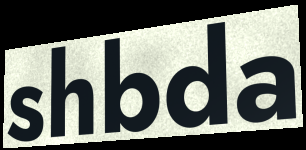
shbda